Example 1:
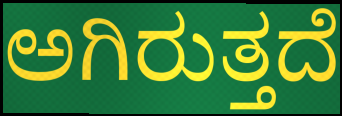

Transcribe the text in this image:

ಅಗಿರುತ್ತದೆ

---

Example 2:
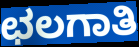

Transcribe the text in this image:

ಛಲಗಾತಿ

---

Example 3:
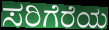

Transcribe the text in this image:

ಸರಿಗೆರೆಯ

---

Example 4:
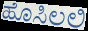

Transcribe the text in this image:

ಹೊಸಿಲಲಿ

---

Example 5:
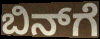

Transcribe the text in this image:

ಬಿನ್‌ಗೆ